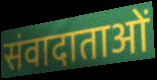
संवादाताओं